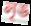
লৃঙ